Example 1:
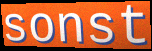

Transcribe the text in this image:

sonst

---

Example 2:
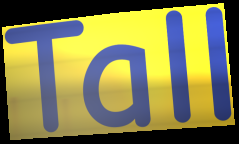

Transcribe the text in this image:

Tall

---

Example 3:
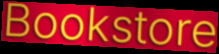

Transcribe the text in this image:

Bookstore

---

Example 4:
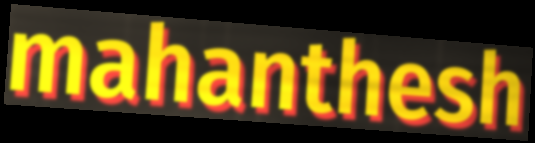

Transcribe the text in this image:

mahanthesh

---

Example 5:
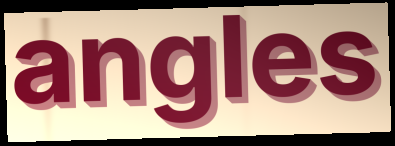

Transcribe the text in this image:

angles